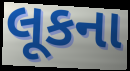
લૂકના